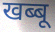
खब्बू